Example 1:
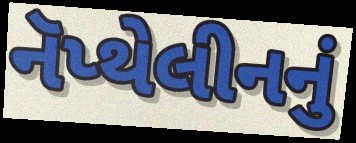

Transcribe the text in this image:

નૅપ્થેલીનનું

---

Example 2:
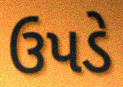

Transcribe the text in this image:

ઉપડે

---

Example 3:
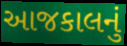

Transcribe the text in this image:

આજકાલનું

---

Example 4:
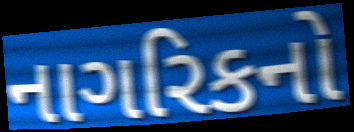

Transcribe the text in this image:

નાગરિકનો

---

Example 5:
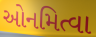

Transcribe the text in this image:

ઓનમિત્વા